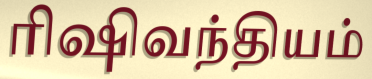
ரிஷிவந்தியம்